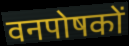
वनपोषकों